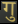
गु